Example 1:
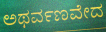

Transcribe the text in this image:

ಅಥರ್ವಣವೇದ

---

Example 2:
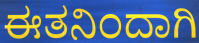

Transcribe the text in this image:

ಈತನಿಂದಾಗಿ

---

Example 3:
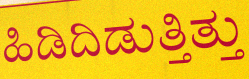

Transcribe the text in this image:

ಹಿಡಿದಿಡುತ್ತಿತ್ತು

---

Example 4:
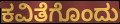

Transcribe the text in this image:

ಕವಿತೆಗೊಂದು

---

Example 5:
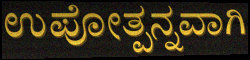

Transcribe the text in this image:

ಉಪೋತ್ಪನ್ನವಾಗಿ